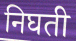
निघती